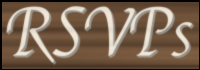
RSVPs